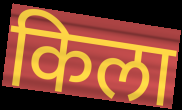
किला